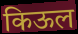
किऊल